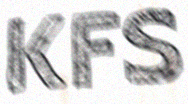
KFS